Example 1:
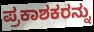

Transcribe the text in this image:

ಪ್ರಕಾಶಕರನ್ನು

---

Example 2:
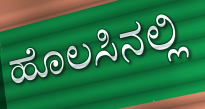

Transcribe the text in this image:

ಹೊಲಸಿನಲ್ಲಿ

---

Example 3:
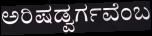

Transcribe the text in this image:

ಅರಿಷಡ್ವರ್ಗವೆಂಬ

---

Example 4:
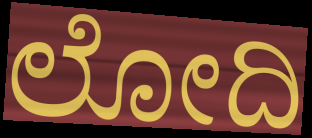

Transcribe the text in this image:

ಲೋದಿ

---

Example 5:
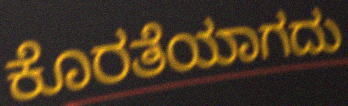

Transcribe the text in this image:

ಕೊರತೆಯಾಗದು